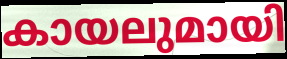
കായലുമായി